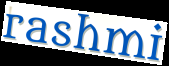
rashmi